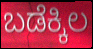
ಬಡೆಕ್ಕಿಲ